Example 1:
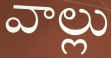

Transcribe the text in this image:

వాల్లు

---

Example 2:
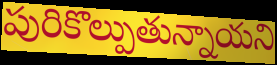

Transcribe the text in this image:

పురికొల్పుతున్నాయని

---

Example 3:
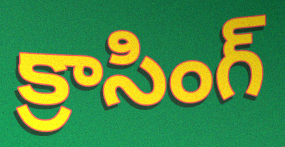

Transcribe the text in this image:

క్రాసింగ్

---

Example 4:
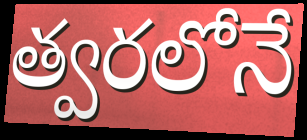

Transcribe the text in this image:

త్వరలోనే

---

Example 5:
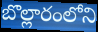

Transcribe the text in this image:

బొల్లారంలోని